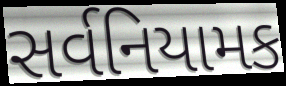
સર્વનિયામક